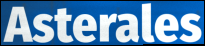
Asterales